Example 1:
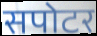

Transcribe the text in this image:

सपोटर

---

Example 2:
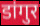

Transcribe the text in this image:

डांगुर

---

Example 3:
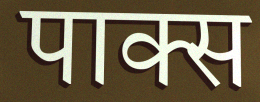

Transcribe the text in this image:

पाक्स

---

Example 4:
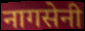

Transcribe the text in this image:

नागसेनी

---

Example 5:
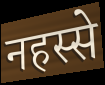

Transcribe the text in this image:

नहस्से